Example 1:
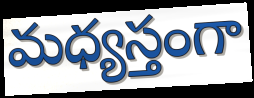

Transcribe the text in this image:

మధ్యస్తంగా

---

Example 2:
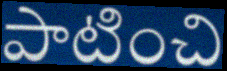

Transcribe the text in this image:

పాటించి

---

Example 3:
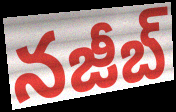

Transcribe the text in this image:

నజీబ్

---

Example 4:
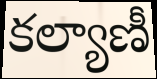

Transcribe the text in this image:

కల్యాణీ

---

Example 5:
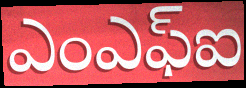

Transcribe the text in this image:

ఎంఎఫ్ఐ